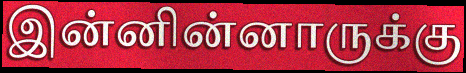
இன்னின்னாருக்கு